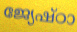
ജ്യേഷ്ഠാ